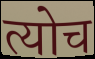
त्योच